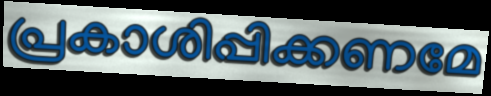
പ്രകാശിപ്പിക്കണമേ